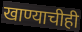
खाण्याचीही